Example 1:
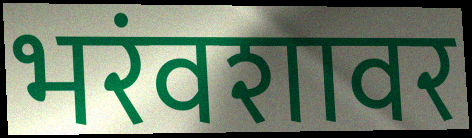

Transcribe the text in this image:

भरंवशावर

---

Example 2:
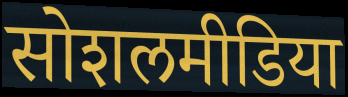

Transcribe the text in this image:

सोशलमीडिया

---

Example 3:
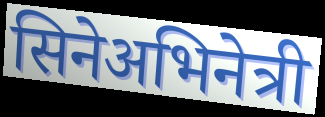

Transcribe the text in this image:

सिनेअभिनेत्री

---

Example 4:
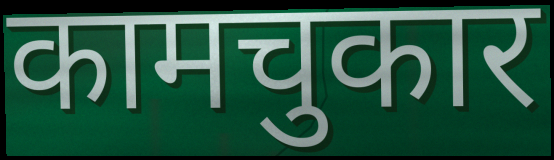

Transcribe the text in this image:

कामचुकार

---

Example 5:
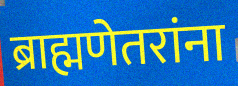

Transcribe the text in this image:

ब्राह्मणेतरांना